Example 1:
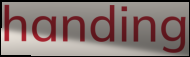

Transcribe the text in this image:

handing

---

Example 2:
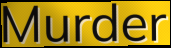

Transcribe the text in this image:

Murder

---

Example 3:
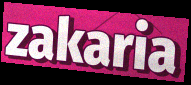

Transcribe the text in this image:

zakaria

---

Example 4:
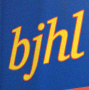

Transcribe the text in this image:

bjhl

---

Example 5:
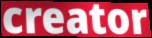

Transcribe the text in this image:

creator